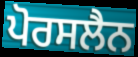
ਪੋਰਸਲੈਨ